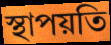
স্থাপয়তি